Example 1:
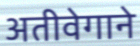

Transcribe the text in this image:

अतीवेगाने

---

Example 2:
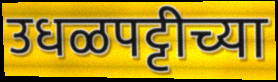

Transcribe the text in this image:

उधळपट्टीच्या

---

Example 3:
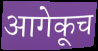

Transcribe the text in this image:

आगेकूच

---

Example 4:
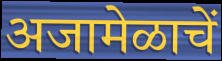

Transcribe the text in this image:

अजामेळाचें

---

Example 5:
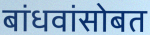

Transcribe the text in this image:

बांधवांसोबत